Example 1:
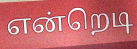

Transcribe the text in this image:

என்றெடி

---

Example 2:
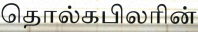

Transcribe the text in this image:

தொல்கபிலரின்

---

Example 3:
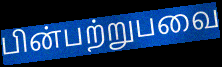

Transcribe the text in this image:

பின்பற்றுபவை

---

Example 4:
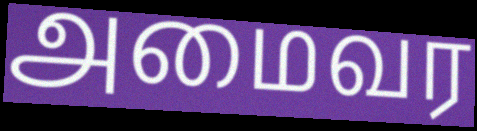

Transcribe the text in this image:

அமைவர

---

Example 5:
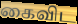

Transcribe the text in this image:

கைவிட